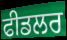
ਫੀਡਲਰ